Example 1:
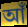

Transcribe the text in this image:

আঁ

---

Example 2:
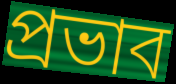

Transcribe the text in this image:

প্ৰভাব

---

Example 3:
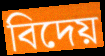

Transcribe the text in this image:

বিদেয়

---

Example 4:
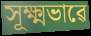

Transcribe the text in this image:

সূক্ষ্মভাৱে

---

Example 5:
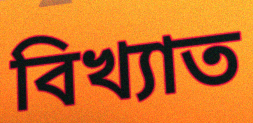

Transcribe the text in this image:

বিখ্যাত